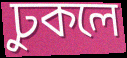
ঢুকলে